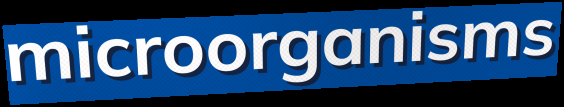
microorganisms